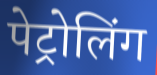
पेट्रोलिंग